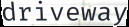
driveway